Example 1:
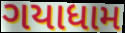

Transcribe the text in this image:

ગયાધામ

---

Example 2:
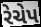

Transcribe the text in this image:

રેચેપ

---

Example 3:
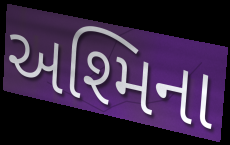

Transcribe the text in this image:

અશ્મિના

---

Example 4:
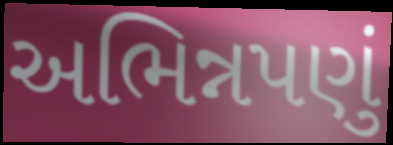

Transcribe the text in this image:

અભિન્નપણું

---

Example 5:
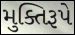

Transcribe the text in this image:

મુક્તિરૂપે